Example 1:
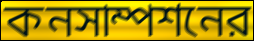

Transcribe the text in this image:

কনসাম্পশনের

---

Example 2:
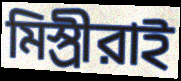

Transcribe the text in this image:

মিস্ত্রীরাই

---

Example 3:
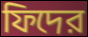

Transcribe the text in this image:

ফিদের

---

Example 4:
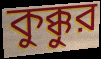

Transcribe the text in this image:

কুক্কুর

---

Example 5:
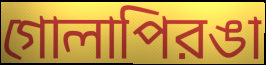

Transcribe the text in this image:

গোলাপিরঙা